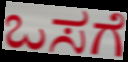
ಒಸಗೆ